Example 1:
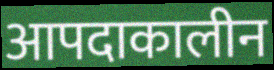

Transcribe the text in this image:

आपदाकालीन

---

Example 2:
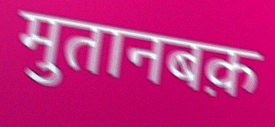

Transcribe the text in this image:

मुतानबक़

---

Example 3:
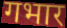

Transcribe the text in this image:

गभार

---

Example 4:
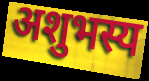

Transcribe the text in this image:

अशुभस्य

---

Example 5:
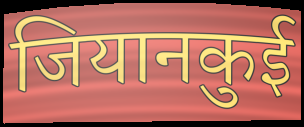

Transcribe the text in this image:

जियानकुई